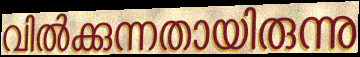
വിൽക്കുന്നതായിരുന്നു